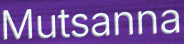
Mutsanna